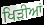
ਖਿੜੀਆਂ